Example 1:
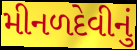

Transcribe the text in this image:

મીનળદેવીનું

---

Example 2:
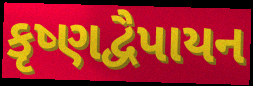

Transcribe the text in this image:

કૃષ્ણદ્વૈપાયન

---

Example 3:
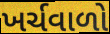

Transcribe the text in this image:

ખર્ચવાળો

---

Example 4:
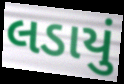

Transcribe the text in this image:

લડાયું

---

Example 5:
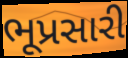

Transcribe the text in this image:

ભૂપ્રસારી